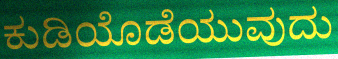
ಕುಡಿಯೊಡೆಯುವುದು